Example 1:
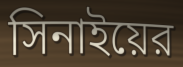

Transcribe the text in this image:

সিনাইয়ের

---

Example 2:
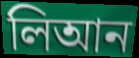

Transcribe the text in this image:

লিআন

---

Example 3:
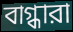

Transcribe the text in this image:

বাগ্ধারা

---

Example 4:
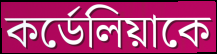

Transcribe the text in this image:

কর্ডেলিয়াকে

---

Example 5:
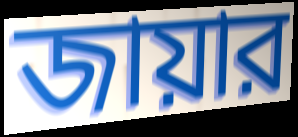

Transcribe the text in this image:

জায়ার